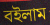
বইলাম